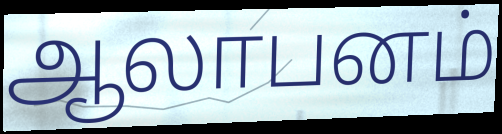
ஆலாபனம்